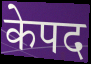
केपद